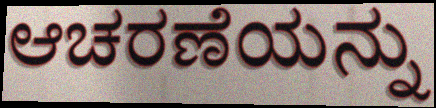
ಆಚರಣೆಯನ್ನು